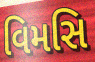
વિમસિ